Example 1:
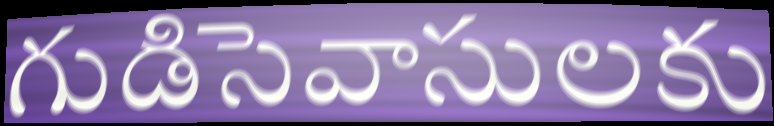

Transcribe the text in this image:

గుడిసెవాసులకు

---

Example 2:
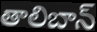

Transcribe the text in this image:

తాలిబాన్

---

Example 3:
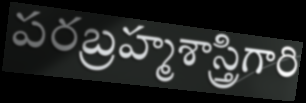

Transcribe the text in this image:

పరబ్రహ్మశాస్త్రిగారి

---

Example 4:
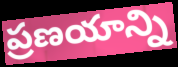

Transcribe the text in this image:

ప్రణయాన్ని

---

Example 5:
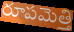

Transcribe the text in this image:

రూపమెత్తి